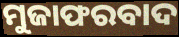
ମୁଜାଫରବାଦ